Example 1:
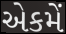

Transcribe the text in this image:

એકમેં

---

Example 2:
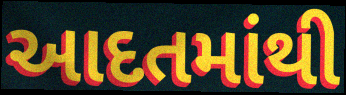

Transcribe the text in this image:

આદતમાંથી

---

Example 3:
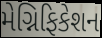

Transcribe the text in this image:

મેગ્નિફિકેશન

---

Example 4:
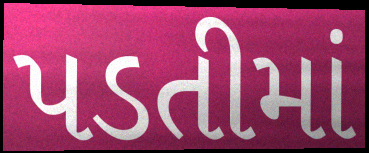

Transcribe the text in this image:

પડતીમાં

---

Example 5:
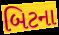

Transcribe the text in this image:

બિટના